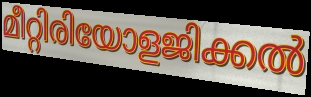
മീറ്റിരിയോളജിക്കൽ